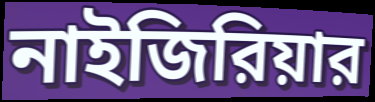
নাইজিরিয়ার